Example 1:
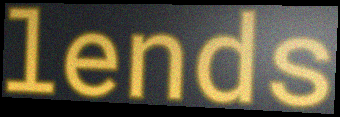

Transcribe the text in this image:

lends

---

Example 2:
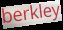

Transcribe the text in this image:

berkley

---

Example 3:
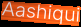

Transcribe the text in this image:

Aashiqui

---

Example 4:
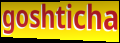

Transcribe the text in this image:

goshticha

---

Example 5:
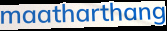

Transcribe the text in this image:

maatharthang